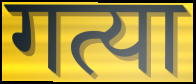
गत्या